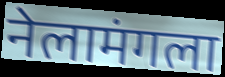
नेलामंगला